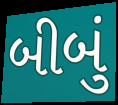
બીબું